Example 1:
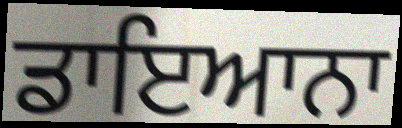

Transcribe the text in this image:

ਡਾਇਆਨਾ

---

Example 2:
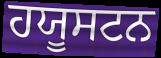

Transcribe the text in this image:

ਹਯੂਸਟਨ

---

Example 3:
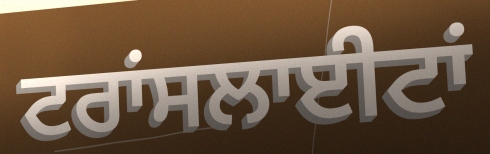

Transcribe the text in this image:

ਟਰਾਂਸਲਾਈਟਾਂ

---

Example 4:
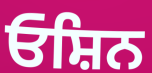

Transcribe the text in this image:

ਓਸ਼ਿਨ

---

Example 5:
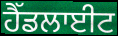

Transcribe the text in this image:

ਹੈੱਡਲਾਈਟ